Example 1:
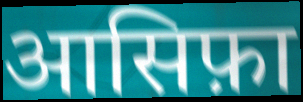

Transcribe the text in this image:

आसिफ़ा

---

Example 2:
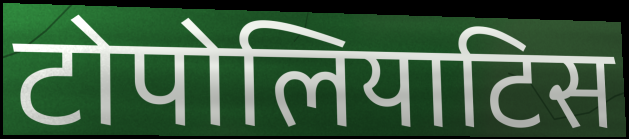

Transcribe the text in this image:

टोपोलियाटिस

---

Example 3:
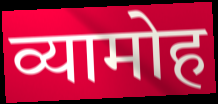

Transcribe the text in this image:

व्यामोह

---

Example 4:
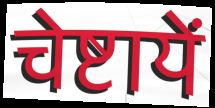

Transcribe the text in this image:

चेष्टायें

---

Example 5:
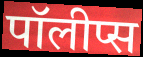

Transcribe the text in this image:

पॉलीप्स